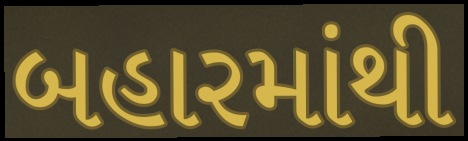
બહારમાંથી